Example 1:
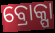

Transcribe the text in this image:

ବ୍ରୋକ୍ପା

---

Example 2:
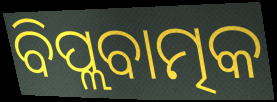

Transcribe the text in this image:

ବିପ୍ଲବାତ୍ମକ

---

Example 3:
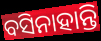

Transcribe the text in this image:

ବସିନାହାନ୍ତି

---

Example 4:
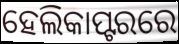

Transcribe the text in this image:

ହେଲିକାପ୍ଟରରେ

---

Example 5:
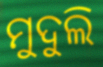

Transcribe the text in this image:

ମୁଦୁଲି